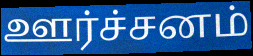
ஊர்ச்சனம்